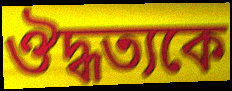
ঔদ্ধত্যকে